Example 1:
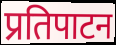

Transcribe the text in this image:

प्रतिपाटन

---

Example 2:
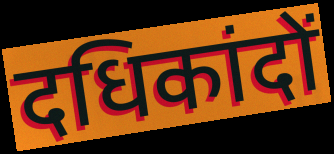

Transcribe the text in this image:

दधिकांदों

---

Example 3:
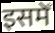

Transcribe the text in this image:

इसमेँ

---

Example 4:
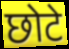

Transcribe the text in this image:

छोटे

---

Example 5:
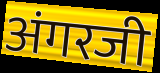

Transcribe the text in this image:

अंगरजी